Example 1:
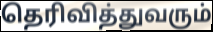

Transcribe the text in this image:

தெரிவித்துவரும்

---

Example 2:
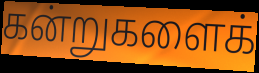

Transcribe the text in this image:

கன்றுகளைக்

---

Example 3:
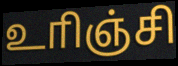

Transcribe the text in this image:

உரிஞ்சி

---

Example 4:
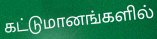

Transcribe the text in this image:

கட்டுமானங்களில்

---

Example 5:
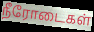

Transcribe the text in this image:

நீரோடைகள்